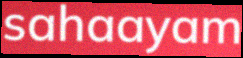
sahaayam